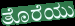
ತೊರೆಯು